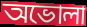
অভোলা